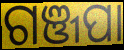
ଗଞ୍ଜପା